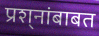
प्रश्नांबाबत